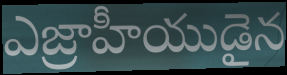
ఎజ్రాహీయుడైన